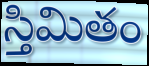
స్తిమితం